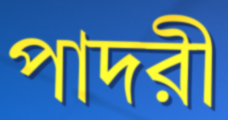
পাদরী